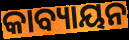
କାବ୍ୟାୟନ